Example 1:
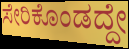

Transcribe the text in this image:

ಸೇರಿಕೊಂಡದ್ದೇ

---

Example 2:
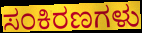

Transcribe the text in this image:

ಸಂಕಿರಣಗಳು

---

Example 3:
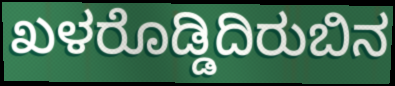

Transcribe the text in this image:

ಖಳರೊಡ್ಡಿದಿರುಬಿನ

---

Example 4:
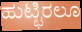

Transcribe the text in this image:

ಹುಟ್ಟಿರಲೂ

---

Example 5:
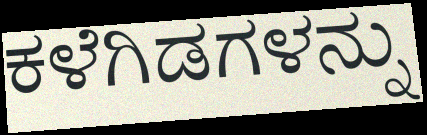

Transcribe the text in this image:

ಕಳೆಗಿಡಗಳನ್ನು